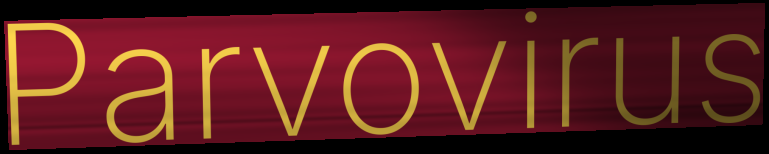
Parvovirus